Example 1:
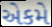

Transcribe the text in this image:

એકમે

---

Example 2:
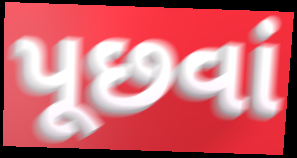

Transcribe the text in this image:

પૂછવાં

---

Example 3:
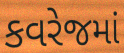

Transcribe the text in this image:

કવરેજમાં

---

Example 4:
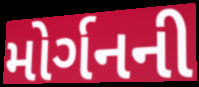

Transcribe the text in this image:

મોર્ગનની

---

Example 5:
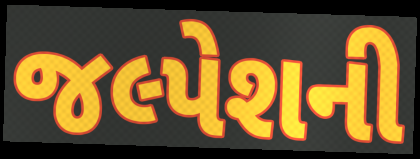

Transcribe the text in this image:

જલ્પેશની